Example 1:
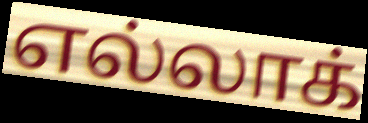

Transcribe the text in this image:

எல்லாக்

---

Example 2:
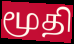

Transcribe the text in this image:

மூதி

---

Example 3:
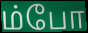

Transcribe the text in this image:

ம்போ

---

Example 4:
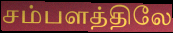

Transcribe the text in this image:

சம்பளத்திலே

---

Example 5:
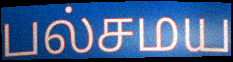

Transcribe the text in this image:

பல்சமய